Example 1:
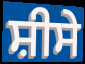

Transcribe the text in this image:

ਸ਼ੀਸੇ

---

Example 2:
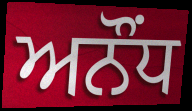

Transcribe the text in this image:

ਅਨੌਂਧ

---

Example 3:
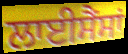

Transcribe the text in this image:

ਲਾਈਸੈਂਸਾਂ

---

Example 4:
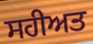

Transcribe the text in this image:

ਸਹੀਅਤ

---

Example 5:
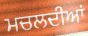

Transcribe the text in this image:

ਮਚਲਦੀਆਂ